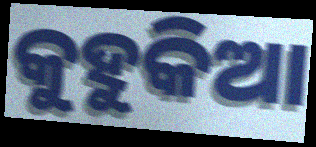
କୁହୁକିଆ